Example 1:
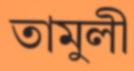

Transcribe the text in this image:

তামুলী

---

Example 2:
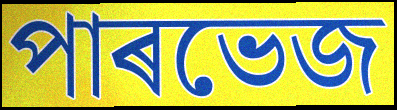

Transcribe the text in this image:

পাৰভেজ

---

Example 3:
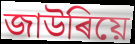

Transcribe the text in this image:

জাউৰিয়ে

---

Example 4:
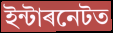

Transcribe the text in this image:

ইন্টাৰনেটত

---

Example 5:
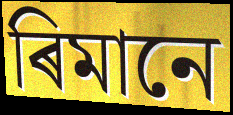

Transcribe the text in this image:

ৰিমানে